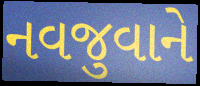
નવજુવાને